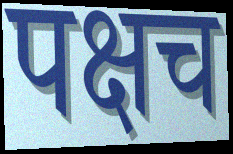
पक्षच